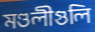
মণ্ডলীগুলি